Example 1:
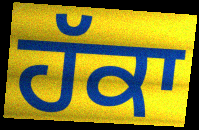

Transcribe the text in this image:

ਹੱਕਾ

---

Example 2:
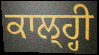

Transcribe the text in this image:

ਕਾਲ੍ਹ੍ਹੀ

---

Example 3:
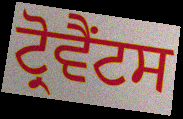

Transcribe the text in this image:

ਟ੍ਰੋਵੈਂਟਸ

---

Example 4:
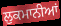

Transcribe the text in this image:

ਲੁਕਮਾਨੀਆਂ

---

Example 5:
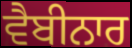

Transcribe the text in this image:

ਵੈਬੀਨਾਰ